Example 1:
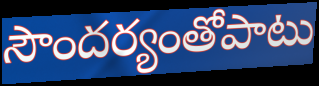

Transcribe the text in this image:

సౌందర్యంతోపాటు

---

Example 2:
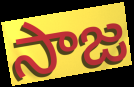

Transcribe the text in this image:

సాజ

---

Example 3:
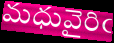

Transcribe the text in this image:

మధువైరిఁ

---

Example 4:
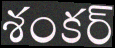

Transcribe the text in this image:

శంకర్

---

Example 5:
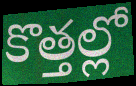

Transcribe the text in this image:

కొత్తల్లో